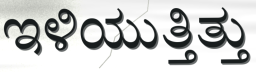
ಇಳಿಯುತ್ತಿತ್ತು